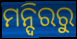
ମନ୍ଦିରରୁ